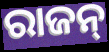
ରାଜନ୍